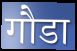
गौडा